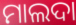
ମାଲଦା